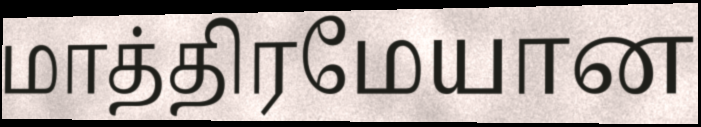
மாத்திரமேயான